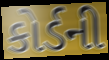
કોર્ડની